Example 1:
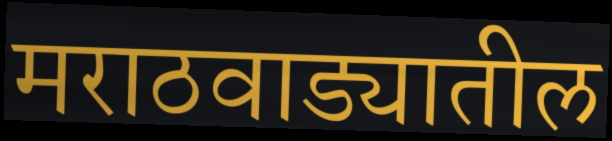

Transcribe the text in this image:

मराठवाड्यातील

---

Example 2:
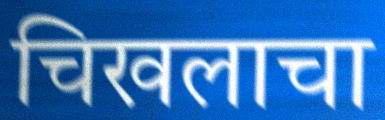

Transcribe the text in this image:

चिखलाचा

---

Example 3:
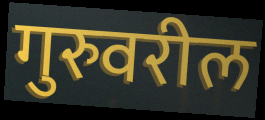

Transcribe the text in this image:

गुरुवरील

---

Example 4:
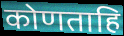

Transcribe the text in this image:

कोणताहि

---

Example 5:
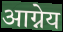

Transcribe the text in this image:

आग्नेय